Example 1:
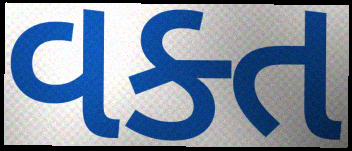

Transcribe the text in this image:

વક્ત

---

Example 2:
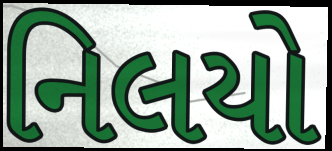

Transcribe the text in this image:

નિલયો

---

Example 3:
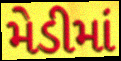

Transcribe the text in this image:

મેડીમાં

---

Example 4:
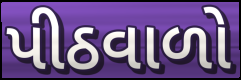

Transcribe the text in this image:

પીઠવાળો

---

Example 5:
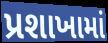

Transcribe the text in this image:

પ્રશાખામાં